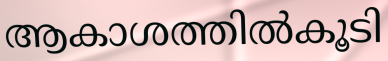
ആകാശത്തിൽകൂടി